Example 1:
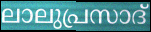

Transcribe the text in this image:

ലാലുപ്രസാദ്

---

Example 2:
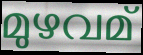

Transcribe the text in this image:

മുഴവമ്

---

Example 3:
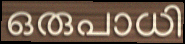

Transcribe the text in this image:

ഒരുപാധി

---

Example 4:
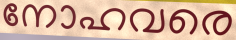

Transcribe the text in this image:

നോഹവരെ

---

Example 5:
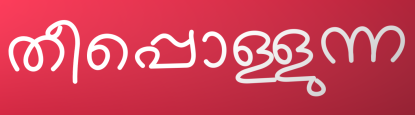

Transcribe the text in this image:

തീപ്പൊള്ളുന്ന